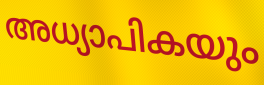
അധ്യാപികയും